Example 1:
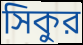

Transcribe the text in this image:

সিকুর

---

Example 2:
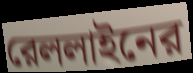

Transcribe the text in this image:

রেললাইনের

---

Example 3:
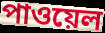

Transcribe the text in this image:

পাওয়েল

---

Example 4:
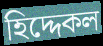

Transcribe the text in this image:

হিদ্দেকল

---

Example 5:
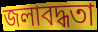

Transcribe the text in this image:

জলাবদ্ধতা